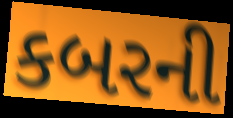
કબરની